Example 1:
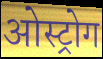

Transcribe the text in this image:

ओस्ट्रोग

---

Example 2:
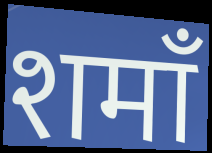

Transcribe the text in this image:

शमाँ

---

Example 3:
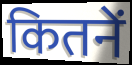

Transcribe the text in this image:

कितनें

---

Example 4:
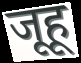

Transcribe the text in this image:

जूहू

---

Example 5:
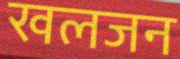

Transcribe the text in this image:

खलजन